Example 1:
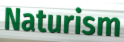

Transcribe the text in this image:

Naturism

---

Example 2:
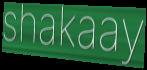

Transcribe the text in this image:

shakaay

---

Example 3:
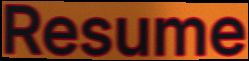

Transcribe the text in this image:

Resume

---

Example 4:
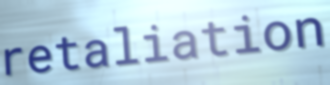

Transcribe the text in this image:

retaliation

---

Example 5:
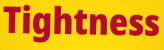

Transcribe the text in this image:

Tightness